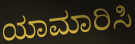
ಯಾಮಾರಿಸಿ